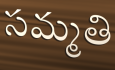
సమ్మతి